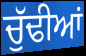
ਚੁੱਢੀਆਂ